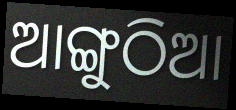
ଆଙ୍ଗୁଠିଆ